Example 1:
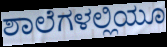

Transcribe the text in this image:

ಶಾಲೆಗಳಲ್ಲಿಯೂ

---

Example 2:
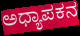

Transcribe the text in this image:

ಅಧ್ಯಾಪಕನ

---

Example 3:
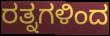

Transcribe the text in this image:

ರತ್ನಗಳಿಂದ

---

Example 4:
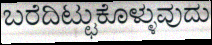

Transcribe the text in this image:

ಬರೆದಿಟ್ಟುಕೊಳ್ಳುವುದು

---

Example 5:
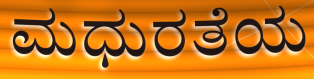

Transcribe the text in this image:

ಮಧುರತೆಯ